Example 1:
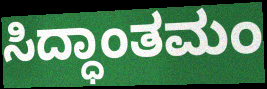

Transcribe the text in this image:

ಸಿದ್ಧಾಂತಮಂ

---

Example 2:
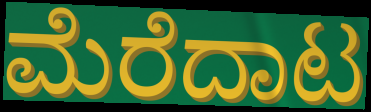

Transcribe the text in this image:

ಮೆರೆದಾಟ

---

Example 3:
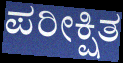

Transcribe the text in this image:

ಪರೀಕ್ಷಿತ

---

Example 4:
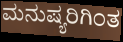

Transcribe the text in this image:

ಮನುಷ್ಯರಿಗಿಂತ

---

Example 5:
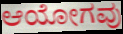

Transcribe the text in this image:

ಆಯೋಗವು